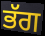
ਭੱਗ